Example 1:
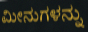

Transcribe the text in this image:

ಮೀನುಗಳನ್ನು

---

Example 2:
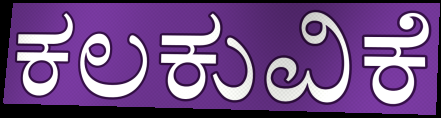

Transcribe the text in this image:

ಕಲಕುವಿಕೆ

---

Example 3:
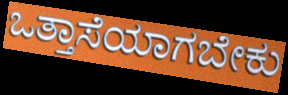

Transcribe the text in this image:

ಒತ್ತಾಸೆಯಾಗಬೇಕು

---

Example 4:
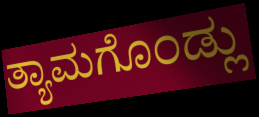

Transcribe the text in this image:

ತ್ಯಾಮಗೊಂಡ್ಲು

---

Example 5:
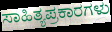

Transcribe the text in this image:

ಸಾಹಿತ್ಯಪ್ರಕಾರಗಳು